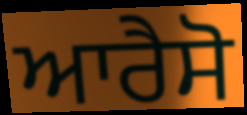
ਆਰੈਸੋ